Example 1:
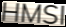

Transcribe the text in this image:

HMSI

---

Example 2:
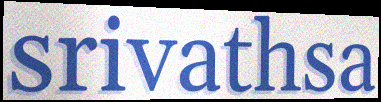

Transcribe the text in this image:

srivathsa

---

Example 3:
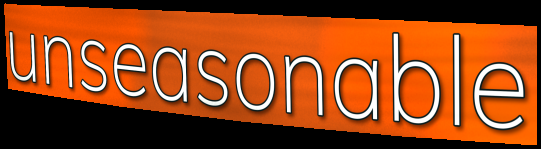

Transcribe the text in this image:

unseasonable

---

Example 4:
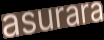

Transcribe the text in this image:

asurara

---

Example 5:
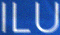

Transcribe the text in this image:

ILU